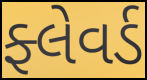
ફ્લેવર્ડ